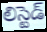
లిస్టెడ్